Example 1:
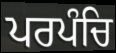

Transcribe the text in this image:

ਪਰਪੰਚਿ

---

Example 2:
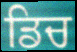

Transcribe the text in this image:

ਡਿਚ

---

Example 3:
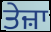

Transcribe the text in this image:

ਤੇਜ਼ਾ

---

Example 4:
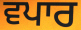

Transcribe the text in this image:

ਵਪਾਰ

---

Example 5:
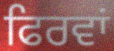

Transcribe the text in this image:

ਫਿਰਵਾਂ